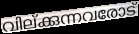
വില്ക്കുന്നവരോട്